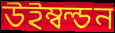
উইম্বল্ডন